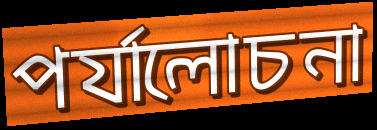
পর্যালোচনা